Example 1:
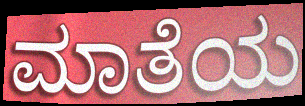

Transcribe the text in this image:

ಮಾತೆಯ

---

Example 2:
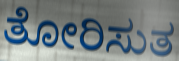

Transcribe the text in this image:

ತೋರಿಸುತ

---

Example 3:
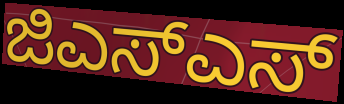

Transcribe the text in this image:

ಜಿಎಸ್ಎಸ್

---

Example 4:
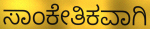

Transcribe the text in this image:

ಸಾಂಕೇತಿಕವಾಗಿ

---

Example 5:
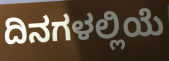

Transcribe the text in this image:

ದಿನಗಳಲ್ಲಿಯೆ